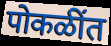
पोकळींत